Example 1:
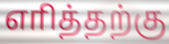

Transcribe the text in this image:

எரித்தற்கு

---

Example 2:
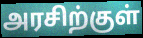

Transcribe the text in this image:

அரசிற்குள்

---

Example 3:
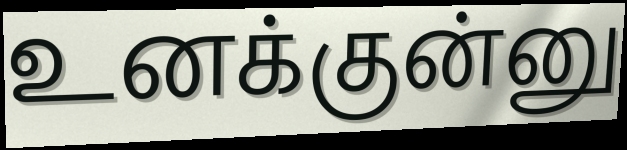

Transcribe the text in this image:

உனக்குன்னு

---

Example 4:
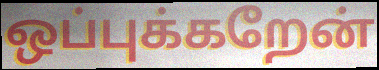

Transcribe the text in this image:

ஒப்புக்கறேன்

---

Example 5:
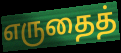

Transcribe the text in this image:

எருதைத்